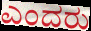
ಎಂದರು